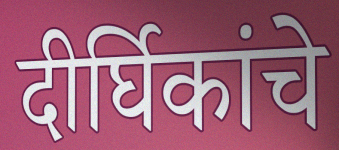
दीर्घिकांचे